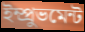
ইম্প্রুভমেন্ট